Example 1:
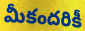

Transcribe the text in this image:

మీకందరికీ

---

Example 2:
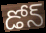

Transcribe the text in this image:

డోన్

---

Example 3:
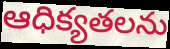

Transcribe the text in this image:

ఆధిక్యతలను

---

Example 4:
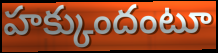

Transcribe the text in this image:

హక్కుందంటూ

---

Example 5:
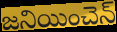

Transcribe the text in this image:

జనియించెన్